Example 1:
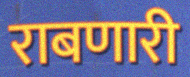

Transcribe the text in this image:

राबणारी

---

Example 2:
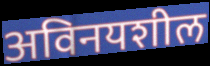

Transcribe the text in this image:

अविनयशील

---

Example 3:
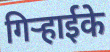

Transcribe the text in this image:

गिर्‍हाईके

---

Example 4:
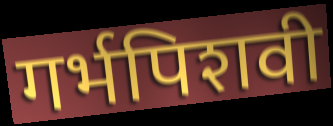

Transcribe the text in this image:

गर्भपिशवी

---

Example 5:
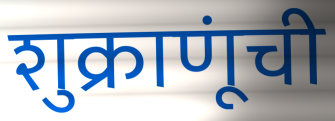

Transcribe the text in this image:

शुक्राणूंची